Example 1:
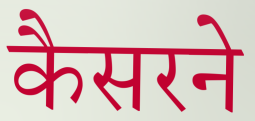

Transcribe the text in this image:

कैसरने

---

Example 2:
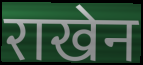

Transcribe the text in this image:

राखेन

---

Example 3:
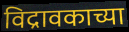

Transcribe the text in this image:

विद्रावकाच्या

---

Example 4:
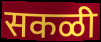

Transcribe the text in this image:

सकळी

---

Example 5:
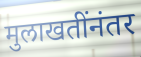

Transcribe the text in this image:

मुलाखतींनंतर